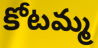
కోటమ్మ